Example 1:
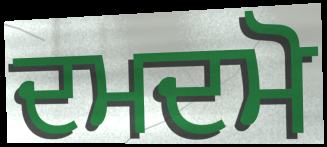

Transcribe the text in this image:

ਦਮਦਮੋ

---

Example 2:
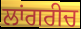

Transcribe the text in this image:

ਲਾਂਗਰੀਚ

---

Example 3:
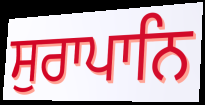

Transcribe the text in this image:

ਸੁਰਾਪਾਨਿ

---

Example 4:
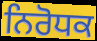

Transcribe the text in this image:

ਨਿਰੋਧਕ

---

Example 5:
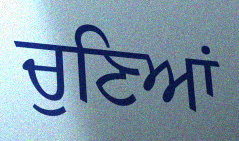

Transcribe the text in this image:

ਚੁਣਿਆਂ